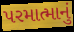
પરમાત્માનું